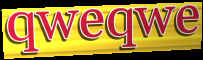
qweqwe